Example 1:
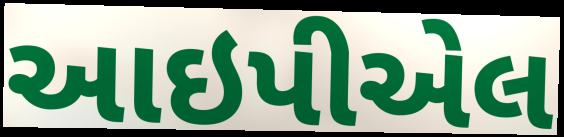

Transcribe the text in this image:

આઇપીએલ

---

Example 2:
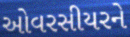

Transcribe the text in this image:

ઓવરસીયરને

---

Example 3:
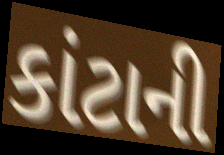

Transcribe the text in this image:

કાંટાની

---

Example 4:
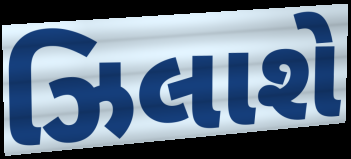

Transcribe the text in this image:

ઝિલાશે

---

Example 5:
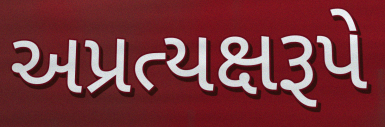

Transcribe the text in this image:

અપ્રત્યક્ષરૂપે